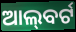
ଆଲ୍‌ବର୍ଟ